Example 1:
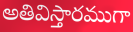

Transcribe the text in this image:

అతివిస్తారముగా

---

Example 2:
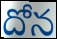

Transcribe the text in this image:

దోన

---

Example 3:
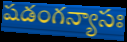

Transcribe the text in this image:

షడంగన్యాసః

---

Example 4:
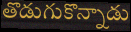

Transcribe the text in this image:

తొడుగుకొన్నాడు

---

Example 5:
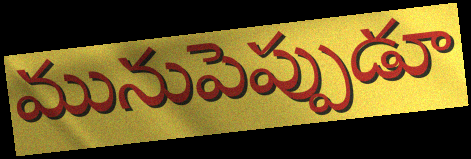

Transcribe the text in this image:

మునుపెప్పుడూ